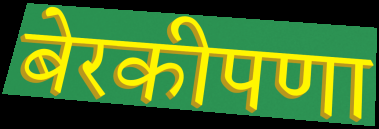
बेरकीपणा